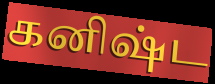
கனிஷ்ட